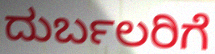
ದುರ್ಬಲರಿಗೆ